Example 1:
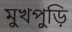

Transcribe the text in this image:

মুখপুড়ি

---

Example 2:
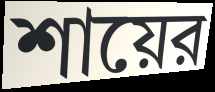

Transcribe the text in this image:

শায়ের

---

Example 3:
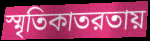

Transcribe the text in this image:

স্মৃতিকাতরতায়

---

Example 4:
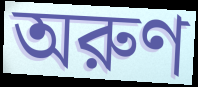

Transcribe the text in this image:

অরুণ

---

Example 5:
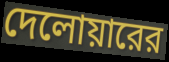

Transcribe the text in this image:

দেলোয়ারের